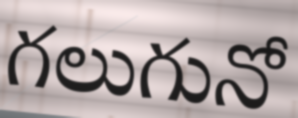
గలుగునో